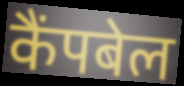
कैंपबेल